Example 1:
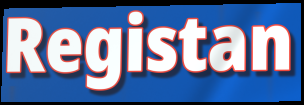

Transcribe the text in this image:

Registan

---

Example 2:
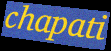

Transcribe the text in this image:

chapati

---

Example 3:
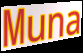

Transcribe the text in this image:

Muna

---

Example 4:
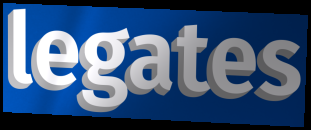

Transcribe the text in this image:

legates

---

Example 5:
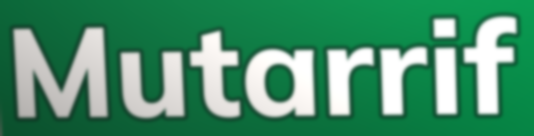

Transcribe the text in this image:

Mutarrif